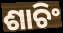
ଶାଚିଂ